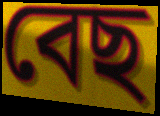
বেছ